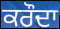
ਕਰੌਦਾ